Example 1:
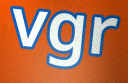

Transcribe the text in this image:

vgr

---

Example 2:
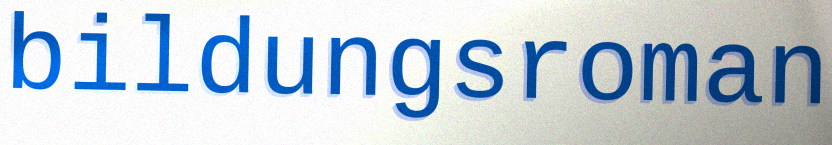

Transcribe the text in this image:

bildungsroman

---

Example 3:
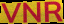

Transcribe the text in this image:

VNR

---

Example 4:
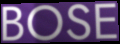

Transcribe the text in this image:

BOSE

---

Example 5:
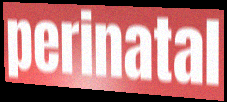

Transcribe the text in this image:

perinatal